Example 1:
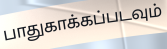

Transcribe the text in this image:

பாதுகாக்கப்படவும்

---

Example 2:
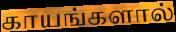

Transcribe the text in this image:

காயங்களால்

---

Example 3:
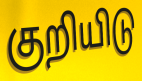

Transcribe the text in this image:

குறியிடு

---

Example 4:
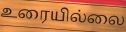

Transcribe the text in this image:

உரையில்லை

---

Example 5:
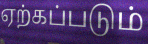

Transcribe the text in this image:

ஏற்கப்படும்